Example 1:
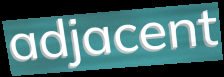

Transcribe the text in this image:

adjacent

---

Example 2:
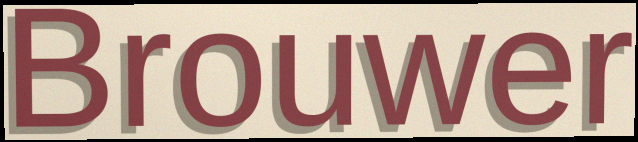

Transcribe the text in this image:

Brouwer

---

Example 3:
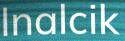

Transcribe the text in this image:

Inalcik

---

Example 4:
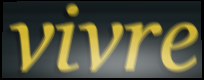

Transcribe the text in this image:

vivre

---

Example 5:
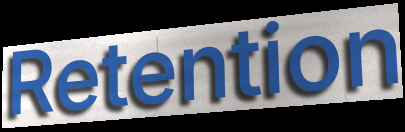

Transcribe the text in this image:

Retention